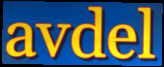
avdel